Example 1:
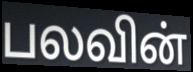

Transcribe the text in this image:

பலவின்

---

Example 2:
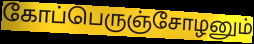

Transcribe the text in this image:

கோப்பெருஞ்சோழனும்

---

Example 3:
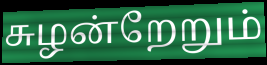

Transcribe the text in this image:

சுழன்றேறும்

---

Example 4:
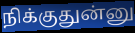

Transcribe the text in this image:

நிக்குதுன்னு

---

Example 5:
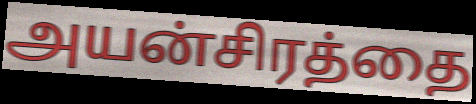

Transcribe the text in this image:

அயன்சிரத்தை